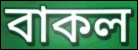
বাকল